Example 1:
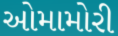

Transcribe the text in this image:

ઓમામોરી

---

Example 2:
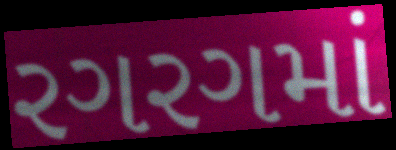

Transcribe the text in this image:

રગરગમાં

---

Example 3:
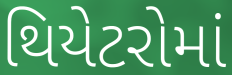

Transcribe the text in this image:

થિયેટરોમાં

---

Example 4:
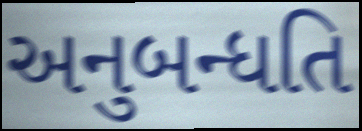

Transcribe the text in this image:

અનુબન્ધતિ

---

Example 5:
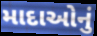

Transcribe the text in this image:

માદાઓનું